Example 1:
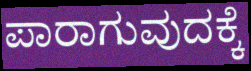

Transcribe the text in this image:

ಪಾರಾಗುವುದಕ್ಕೆ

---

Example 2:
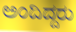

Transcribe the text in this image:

ಅಂದಿದ್ದರು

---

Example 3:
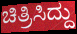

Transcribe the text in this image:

ಚಿತ್ರಿಸಿದ್ದು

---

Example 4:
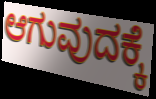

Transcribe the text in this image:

ಆಗುವುದಕ್ಕೆ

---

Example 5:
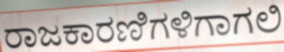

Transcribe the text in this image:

ರಾಜಕಾರಣಿಗಳಿಗಾಗಲಿ